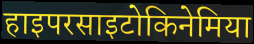
हाइपरसाइटोकिनेमिया